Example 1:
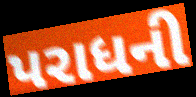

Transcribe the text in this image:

પરાધની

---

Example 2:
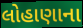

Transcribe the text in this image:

લોહાણાના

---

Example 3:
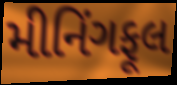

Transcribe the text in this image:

મીનિંગફૂલ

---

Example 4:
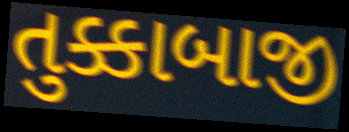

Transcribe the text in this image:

તુક્કાબાજી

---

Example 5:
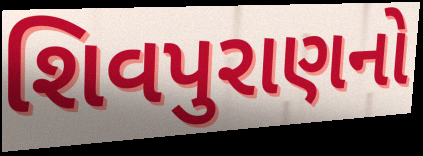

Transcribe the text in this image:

શિવપુરાણનો